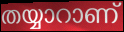
തയ്യാറാണ്